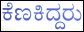
ಕೆಣಕಿದ್ದರು